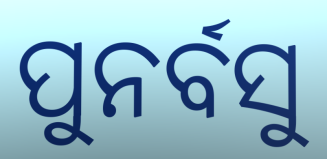
ପୁନର୍ବସୁ